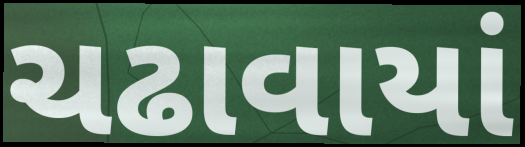
ચઢાવાયાં